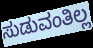
ಸುಡುವಂತಿಲ್ಲ